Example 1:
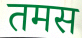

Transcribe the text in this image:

तमस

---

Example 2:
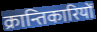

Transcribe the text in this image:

क्रान्तिकारियों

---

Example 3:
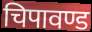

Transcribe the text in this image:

चिपावण्ड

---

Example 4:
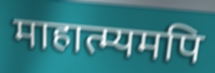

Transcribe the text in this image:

माहात्म्यमपि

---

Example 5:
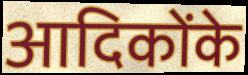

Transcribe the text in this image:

आदिकोंके